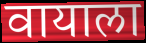
वायाला